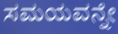
ಸಮಯವನ್ನೇ